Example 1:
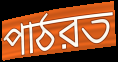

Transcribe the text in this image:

পাঠরত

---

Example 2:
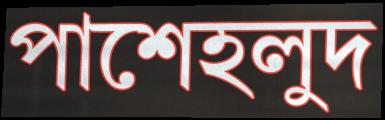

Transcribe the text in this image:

পাশেহলুদ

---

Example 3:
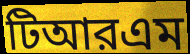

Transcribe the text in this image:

টিআরএম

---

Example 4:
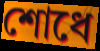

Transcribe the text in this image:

শোধে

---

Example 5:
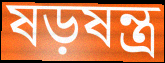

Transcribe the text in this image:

ষড়ষন্ত্র